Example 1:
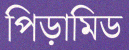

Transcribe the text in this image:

পিড়ামিড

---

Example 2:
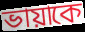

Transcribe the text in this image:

ভায়াকে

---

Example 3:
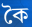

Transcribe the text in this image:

কৈ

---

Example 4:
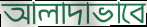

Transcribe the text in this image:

আলাদাভাবে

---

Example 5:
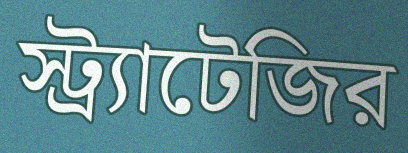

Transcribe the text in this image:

স্ট্র্যাটেজির